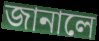
জানালে